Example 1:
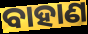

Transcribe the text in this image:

ବାହାଣ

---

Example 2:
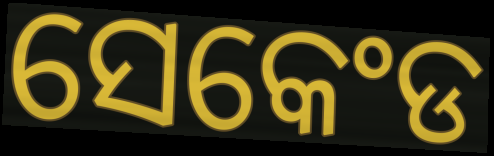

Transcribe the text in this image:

ସେକେଂଡ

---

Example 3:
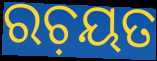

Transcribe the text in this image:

ରଚ଼ୟତ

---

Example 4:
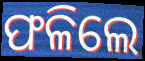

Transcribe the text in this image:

ଫଳିଲେ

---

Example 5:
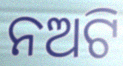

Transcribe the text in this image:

ନଅଟି